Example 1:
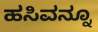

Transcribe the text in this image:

ಹಸಿವನ್ನೂ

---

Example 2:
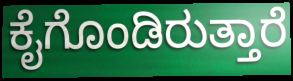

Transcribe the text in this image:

ಕೈಗೊಂಡಿರುತ್ತಾರೆ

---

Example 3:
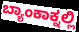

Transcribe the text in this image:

ಬ್ಯಾಂಕಾಕ್ನಲ್ಲಿ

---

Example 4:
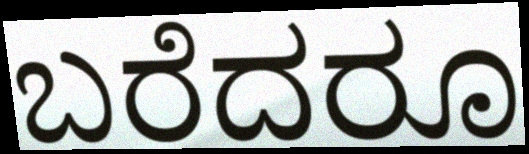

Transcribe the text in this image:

ಬರೆದರೂ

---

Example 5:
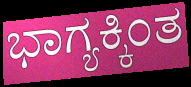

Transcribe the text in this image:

ಭಾಗ್ಯಕ್ಕಿಂತ